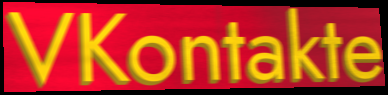
VKontakte